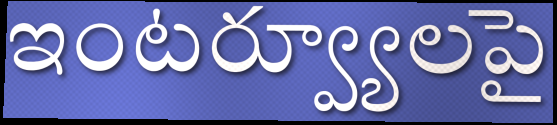
ఇంటర్వ్యూలపై